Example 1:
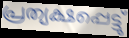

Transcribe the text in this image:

പ്രത്യക്ഷപ്പെട്ടു്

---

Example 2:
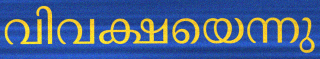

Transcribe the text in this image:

വിവക്ഷയെന്നു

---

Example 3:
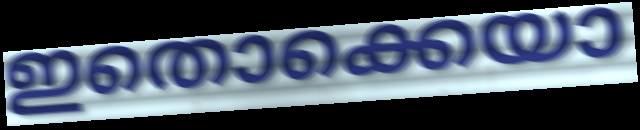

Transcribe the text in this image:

ഇതൊക്കെയാ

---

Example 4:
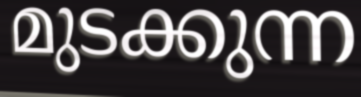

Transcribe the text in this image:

മുടക്കുന്ന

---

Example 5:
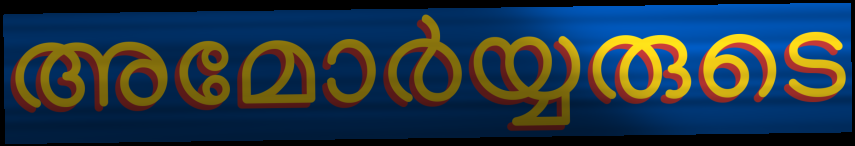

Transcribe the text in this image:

അമോർയ്യരുടെ